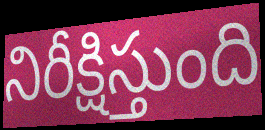
నిరీక్షిస్తుంది